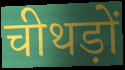
चीथड़ों